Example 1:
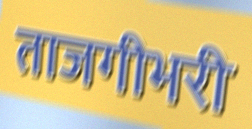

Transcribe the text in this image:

ताजगीभरी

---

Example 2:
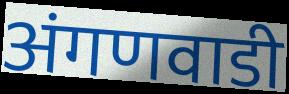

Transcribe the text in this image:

अंगणवाडी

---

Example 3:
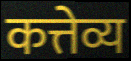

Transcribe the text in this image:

कत्तेव्य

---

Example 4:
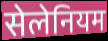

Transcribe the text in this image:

सेलेनियम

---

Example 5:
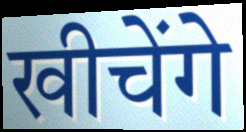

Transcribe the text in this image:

खीचेंगे